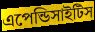
এপেন্ডিসাইটিস